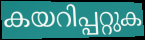
കയറിപ്പറ്റുക